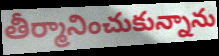
తీర్మానించుకున్నాను